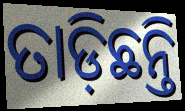
ତାଡ଼ିଛନ୍ତି